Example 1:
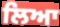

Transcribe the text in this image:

ਲਿਆ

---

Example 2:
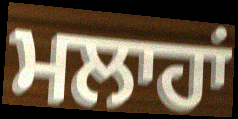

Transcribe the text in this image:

ਮਲਾਹਾਂ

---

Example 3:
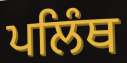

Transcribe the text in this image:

ਪਲਿੰਥ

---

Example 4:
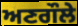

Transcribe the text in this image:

ਅਣਗੌਲੇ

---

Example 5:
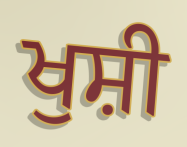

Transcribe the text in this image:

ਖੁਸ਼ੀ